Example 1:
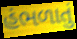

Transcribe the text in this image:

હંભળાતું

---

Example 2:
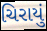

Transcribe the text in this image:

ચિરાયું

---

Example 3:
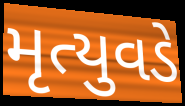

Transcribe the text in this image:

મૃત્યુવડે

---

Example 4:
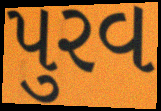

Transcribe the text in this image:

પુરવ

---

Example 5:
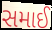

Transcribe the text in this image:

સમાઈ